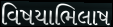
વિષયાભિલાષ